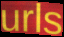
urls